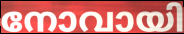
നോവായി